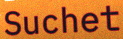
Suchet